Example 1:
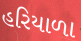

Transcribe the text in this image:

હરિયાળા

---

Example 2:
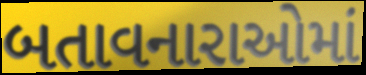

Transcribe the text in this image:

બતાવનારાઓમાં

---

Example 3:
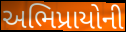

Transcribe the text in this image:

અભિપ્રાયોની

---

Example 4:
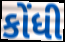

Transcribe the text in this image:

કોંધી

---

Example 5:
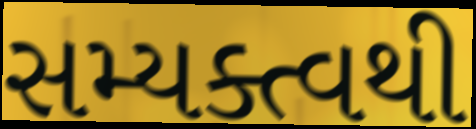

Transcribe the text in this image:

સમ્યક્ત્વથી